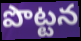
పొట్టన